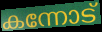
കന്നോട്